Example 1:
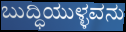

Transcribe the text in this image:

ಬುದ್ಧಿಯುಳ್ಳವನು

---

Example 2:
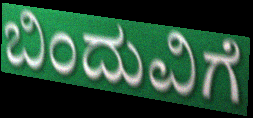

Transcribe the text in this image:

ಬಿಂದುವಿಗೆ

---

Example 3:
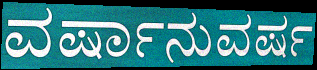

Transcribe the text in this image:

ವರ್ಷಾನುವರ್ಷ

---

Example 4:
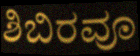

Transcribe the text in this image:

ಶಿಬಿರವೂ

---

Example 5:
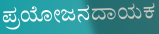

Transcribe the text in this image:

ಪ್ರಯೋಜನದಾಯಕ